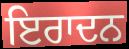
ਇਰਾਦਨ